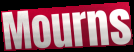
Mourns